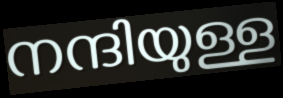
നന്ദിയുള്ള